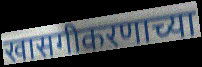
खासगीकरणाच्या